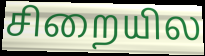
சிறையில